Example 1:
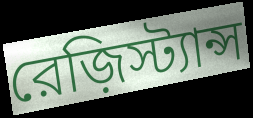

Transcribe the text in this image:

রেজ়িস্ট্যান্স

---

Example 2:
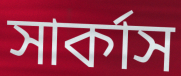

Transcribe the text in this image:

সার্কাস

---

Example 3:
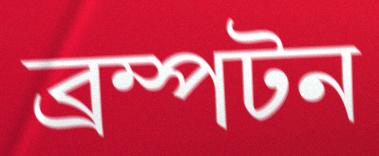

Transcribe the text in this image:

ব্রম্পটন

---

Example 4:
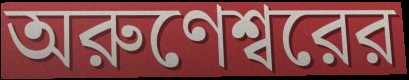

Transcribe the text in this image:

অরুণেশ্বরের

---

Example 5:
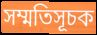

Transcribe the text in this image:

সম্মতিসূচক